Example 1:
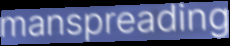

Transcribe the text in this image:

manspreading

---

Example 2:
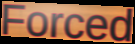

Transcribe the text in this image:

Forced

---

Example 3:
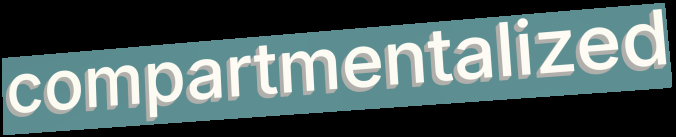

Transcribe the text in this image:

compartmentalized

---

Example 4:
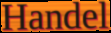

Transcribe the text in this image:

Handel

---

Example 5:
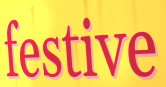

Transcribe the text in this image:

festive